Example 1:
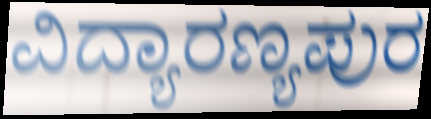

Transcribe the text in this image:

ವಿದ್ಯಾರಣ್ಯಪುರ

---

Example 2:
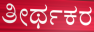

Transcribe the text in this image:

ತೀರ್ಥಕರ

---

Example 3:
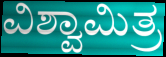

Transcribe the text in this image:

ವಿಶ್ವಾಮಿತ್ರ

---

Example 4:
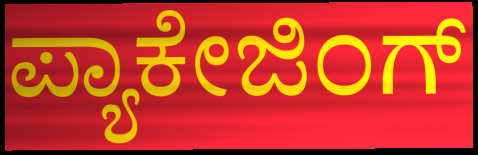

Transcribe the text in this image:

ಪ್ಯಾಕೇಜಿಂಗ್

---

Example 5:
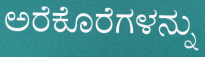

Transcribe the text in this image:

ಅರೆಕೊರೆಗಳನ್ನು